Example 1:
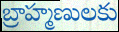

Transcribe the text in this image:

బ్రాహ్మణులకు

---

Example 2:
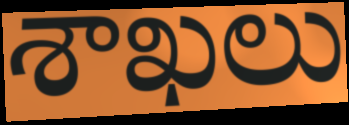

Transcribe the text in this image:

శాఖలు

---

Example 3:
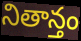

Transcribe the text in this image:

నితాన్తం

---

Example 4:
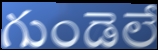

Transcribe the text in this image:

గుండెలే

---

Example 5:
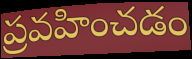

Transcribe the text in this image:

ప్రవహించడం